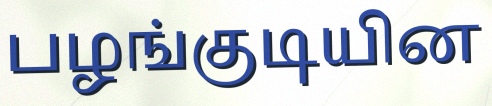
பழங்குடியின